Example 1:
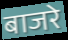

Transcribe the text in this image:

बाजरे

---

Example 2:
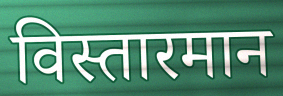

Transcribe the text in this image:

विस्तारमान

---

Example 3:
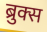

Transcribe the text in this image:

ब्रुक्‍स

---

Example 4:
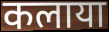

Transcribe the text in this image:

कलाया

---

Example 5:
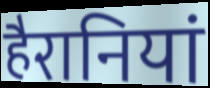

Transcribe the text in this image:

हैरानियां